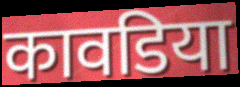
कावडिया